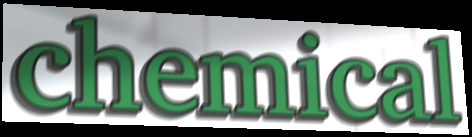
chemical